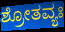
ಶ್ರೋತವ್ಯಃ